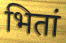
भितां